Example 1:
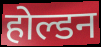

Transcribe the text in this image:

होल्डन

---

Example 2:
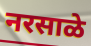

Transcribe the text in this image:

नरसाळे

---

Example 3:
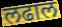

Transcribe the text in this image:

लढाल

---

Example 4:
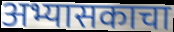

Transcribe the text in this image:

अभ्यासकाचा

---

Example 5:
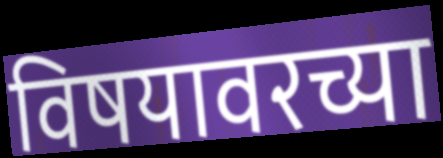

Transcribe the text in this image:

विषयावरच्या